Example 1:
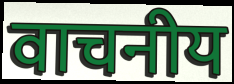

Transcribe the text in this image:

वाचनीय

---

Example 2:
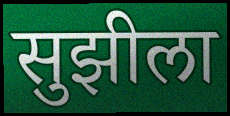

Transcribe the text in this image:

सुझीला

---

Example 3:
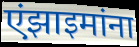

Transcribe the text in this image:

एंझाइमांना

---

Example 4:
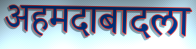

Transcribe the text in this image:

अहमदाबादला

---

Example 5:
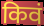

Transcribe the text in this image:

किवं